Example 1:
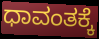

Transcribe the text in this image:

ಧಾವಂತಕ್ಕೆ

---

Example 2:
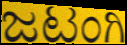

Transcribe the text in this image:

ಜಟಂಗಿ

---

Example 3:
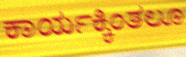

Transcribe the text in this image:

ಕಾರ್ಯಕ್ಕಿಂತಲೂ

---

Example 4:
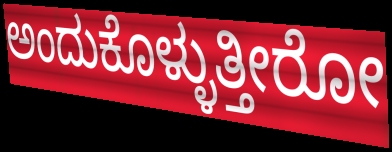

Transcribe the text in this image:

ಅಂದುಕೊಳ್ಳುತ್ತೀರೋ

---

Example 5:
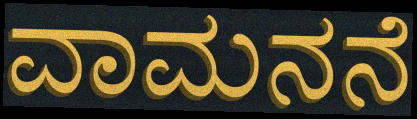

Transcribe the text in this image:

ವಾಮನನೆ